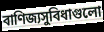
বাণিজ্যসুবিধাগুলো